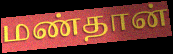
மண்தான்